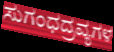
ಸುಗಂಧದ್ರವ್ಯಗಳ